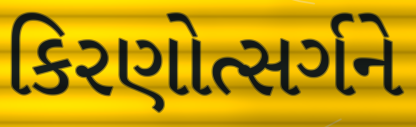
કિરણોત્સર્ગને